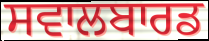
ਸਵਾਲਬਾਰਡ